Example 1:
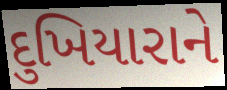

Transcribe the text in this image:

દુખિયારાને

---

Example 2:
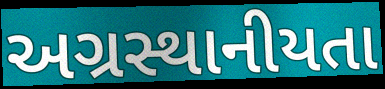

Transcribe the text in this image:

અગ્રસ્થાનીયતા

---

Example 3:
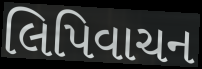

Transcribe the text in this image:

લિપિવાચન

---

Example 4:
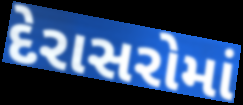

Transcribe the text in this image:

દેરાસરોમાં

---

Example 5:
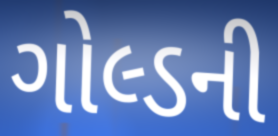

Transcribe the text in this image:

ગોલ્ડની